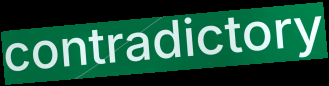
contradictory